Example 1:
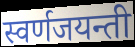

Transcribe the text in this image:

स्वर्णजयन्ती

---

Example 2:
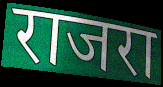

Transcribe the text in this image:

राजरा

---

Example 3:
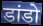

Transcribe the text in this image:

डांडो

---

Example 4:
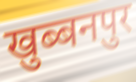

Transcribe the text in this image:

खुब्बनपुर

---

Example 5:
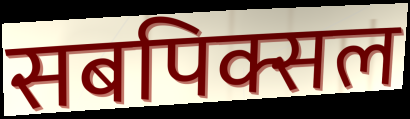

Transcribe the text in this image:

सबपिक्सल